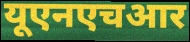
यूएनएचआर